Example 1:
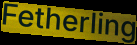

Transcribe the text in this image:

Fetherling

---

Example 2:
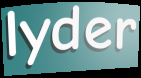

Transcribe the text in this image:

lyder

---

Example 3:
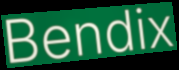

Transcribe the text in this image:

Bendix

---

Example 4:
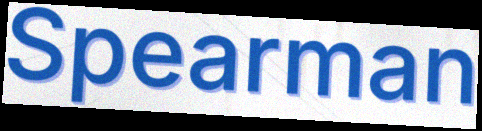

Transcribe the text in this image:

Spearman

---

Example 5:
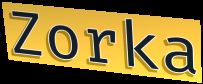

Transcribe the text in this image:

Zorka